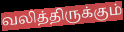
வலித்திருக்கும்